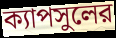
ক্যাপসুলের